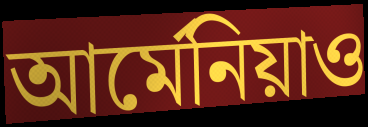
আর্মেনিয়াও